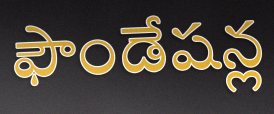
ఫౌండేషన్ల